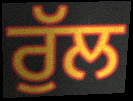
ਰੁੱਲ